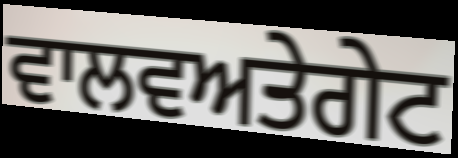
ਵਾਲਵਅਤੇਗੇਟ